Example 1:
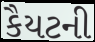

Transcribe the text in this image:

કૈયટની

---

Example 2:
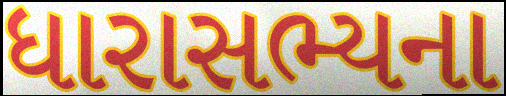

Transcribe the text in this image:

ધારાસભ્યના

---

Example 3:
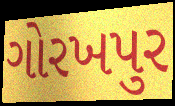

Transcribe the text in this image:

ગોરખપુર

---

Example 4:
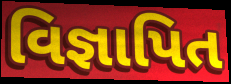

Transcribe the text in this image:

વિજ્ઞાપિત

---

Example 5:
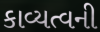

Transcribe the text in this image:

કાવ્યત્વની